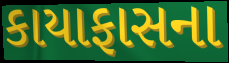
કાયાફાસના